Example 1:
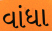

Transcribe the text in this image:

વાંધા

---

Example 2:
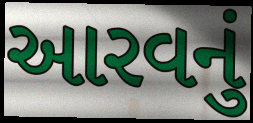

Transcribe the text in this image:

આરવનું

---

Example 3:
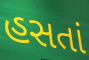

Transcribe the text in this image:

હસતાં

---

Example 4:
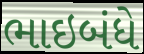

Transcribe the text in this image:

ભાઇબંધે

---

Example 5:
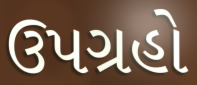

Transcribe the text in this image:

ઉપગ્રહો